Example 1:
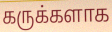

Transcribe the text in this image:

கருக்களாக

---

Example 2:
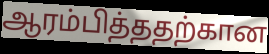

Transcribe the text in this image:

ஆரம்பித்ததற்கான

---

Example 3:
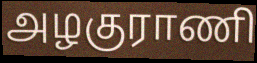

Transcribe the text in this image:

அழகுராணி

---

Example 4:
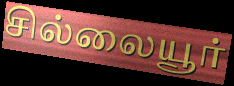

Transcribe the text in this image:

சில்லையூர்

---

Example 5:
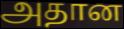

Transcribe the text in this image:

அதான